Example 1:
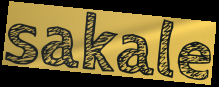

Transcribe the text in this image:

sakale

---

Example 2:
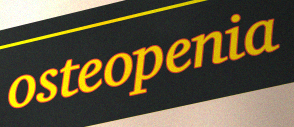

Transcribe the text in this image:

osteopenia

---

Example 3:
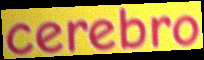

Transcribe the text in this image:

cerebro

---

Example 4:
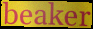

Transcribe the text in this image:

beaker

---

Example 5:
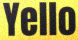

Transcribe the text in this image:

Yello